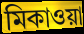
মিকাওয়া